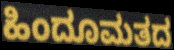
ಹಿಂದೂಮತದ